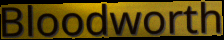
Bloodworth